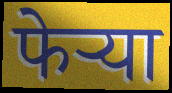
फेऱ्या